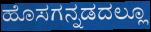
ಹೊಸಗನ್ನಡದಲ್ಲೂ